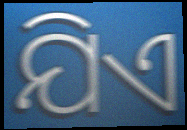
ଯିଏ